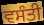
ਵਸੰਤੀ